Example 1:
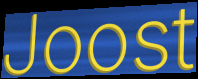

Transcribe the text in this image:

Joost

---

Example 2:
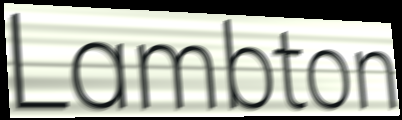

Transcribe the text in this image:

Lambton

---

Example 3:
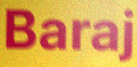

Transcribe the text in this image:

Baraj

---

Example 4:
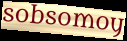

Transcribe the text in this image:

sobsomoy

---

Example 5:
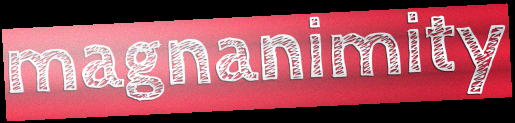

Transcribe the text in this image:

magnanimity